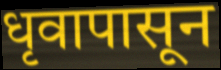
धृवापासून